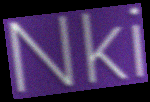
Nki